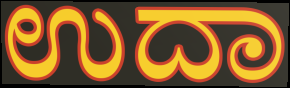
ಉದಾ